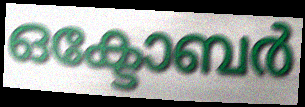
ഒക്ടോബർ